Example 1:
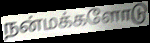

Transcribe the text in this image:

நன்மக்களோடு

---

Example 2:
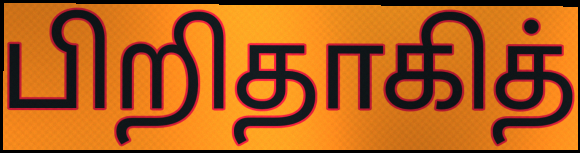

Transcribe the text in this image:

பிறிதாகித்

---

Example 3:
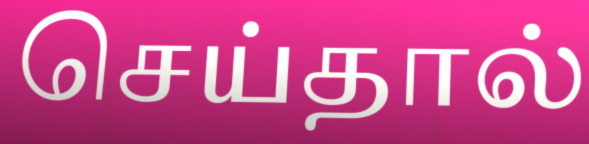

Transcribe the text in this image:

செய்தால்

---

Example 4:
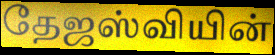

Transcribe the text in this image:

தேஜஸ்வியின்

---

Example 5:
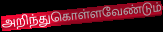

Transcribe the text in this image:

அறிந்துகொள்ளவேண்டும்